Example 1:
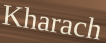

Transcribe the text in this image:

Kharach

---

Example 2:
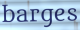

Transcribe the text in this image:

barges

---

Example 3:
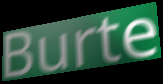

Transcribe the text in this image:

Burte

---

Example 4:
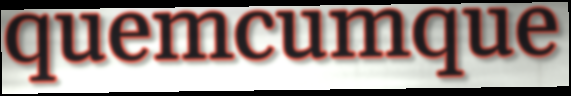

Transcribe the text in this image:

quemcumque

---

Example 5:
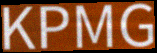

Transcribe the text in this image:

KPMG